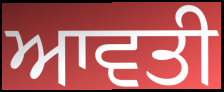
ਆਵਤੀ